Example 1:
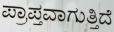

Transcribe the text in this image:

ಪ್ರಾಪ್ತವಾಗುತ್ತಿದೆ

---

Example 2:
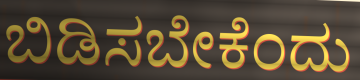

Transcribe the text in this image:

ಬಿಡಿಸಬೇಕೆಂದು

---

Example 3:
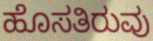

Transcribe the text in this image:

ಹೊಸತಿರುವು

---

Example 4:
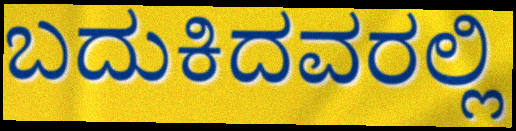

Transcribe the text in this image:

ಬದುಕಿದವರಲ್ಲಿ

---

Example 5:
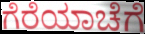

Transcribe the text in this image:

ಗೆರೆಯಾಚೆಗೆ